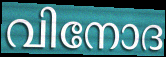
വിനോദ